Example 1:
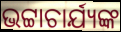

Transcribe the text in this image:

ଭଟ୍ଟାଚାର୍ଯ୍ୟଙ୍କ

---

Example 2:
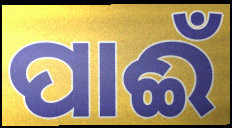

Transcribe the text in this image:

ପାଈଁ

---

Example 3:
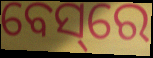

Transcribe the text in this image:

ବେସ୍‌ରେ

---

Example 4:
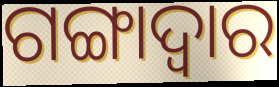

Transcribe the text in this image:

ଗଙ୍ଗାଦ୍ୱାର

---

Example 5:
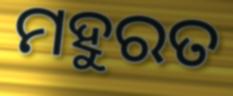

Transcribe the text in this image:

ମହୁରତ